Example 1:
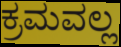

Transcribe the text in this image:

ಕ್ರಮವಲ್ಲ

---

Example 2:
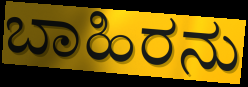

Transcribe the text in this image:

ಬಾಹಿರನು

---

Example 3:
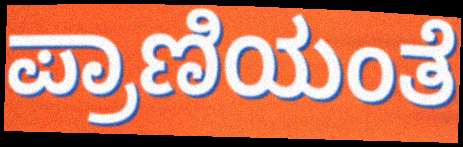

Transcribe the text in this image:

ಪ್ರಾಣಿಯಂತೆ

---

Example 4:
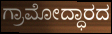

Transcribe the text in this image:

ಗ್ರಾಮೋದ್ಧಾರದ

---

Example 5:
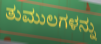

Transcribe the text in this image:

ತುಮುಲಗಳನ್ನು